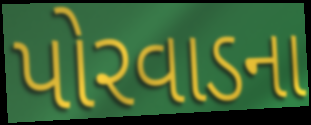
પોરવાડના